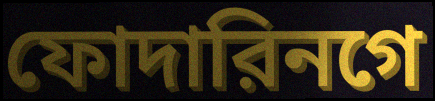
ফোদারিনগে